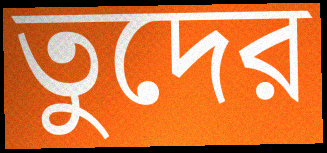
তুদের